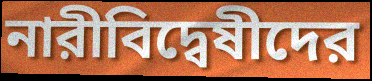
নারীবিদ্বেষীদের